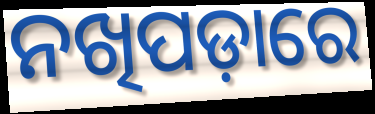
ନଖିପଡ଼ାରେ